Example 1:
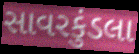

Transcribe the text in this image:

સાવરકુંડલા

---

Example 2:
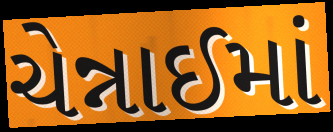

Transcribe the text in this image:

ચેન્નાઈમાં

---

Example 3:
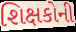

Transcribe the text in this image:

શિક્ષકોની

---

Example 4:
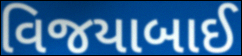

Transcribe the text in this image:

વિજયાબાઈ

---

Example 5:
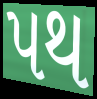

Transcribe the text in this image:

પથ